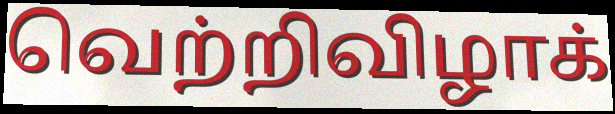
வெற்றிவிழாக்